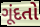
ગૂંદતો